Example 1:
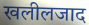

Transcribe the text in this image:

खलीलजाद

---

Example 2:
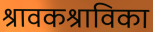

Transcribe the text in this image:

श्रावकश्राविका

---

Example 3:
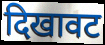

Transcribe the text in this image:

दिखावट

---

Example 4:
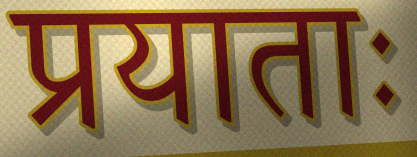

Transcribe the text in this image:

प्रयाताः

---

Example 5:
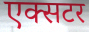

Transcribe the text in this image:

एक्सटर